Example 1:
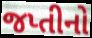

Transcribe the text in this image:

જપ્તીનો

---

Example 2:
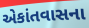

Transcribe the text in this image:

એકાંતવાસના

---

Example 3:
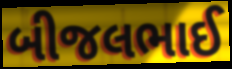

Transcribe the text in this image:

બીજલભાઈ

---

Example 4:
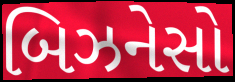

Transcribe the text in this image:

બિઝનેસો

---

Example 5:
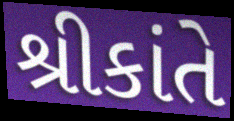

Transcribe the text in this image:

શ્રીકાંતે